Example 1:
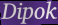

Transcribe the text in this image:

Dipok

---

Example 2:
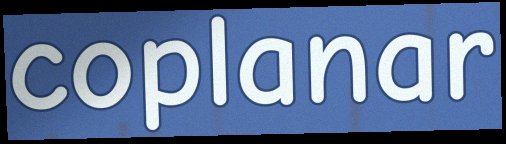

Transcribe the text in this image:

coplanar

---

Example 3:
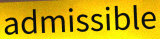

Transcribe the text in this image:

admissible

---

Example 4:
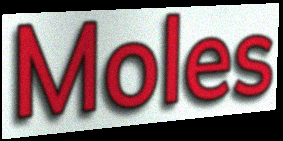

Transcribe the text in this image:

Moles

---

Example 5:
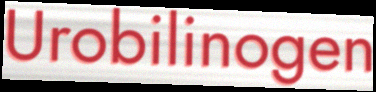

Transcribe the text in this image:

Urobilinogen